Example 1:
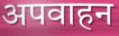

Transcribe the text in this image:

अपवाहन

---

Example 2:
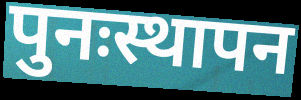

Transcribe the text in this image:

पुनःस्थापन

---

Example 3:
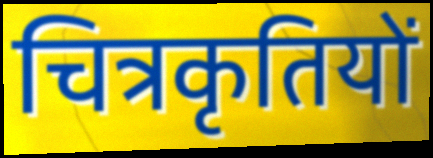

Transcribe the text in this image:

चित्रकृतियों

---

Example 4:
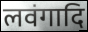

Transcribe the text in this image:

लवंगादि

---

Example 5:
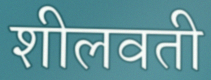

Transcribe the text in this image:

शीलवती